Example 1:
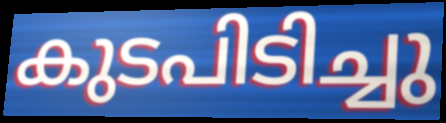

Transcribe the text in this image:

കുടപിടിച്ചു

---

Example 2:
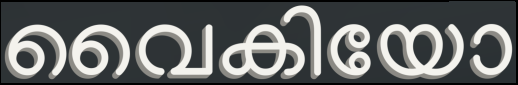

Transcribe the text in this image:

വൈകിയോ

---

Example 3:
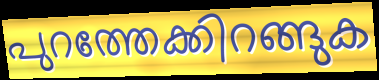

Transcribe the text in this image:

പുറത്തേക്കിറങ്ങുക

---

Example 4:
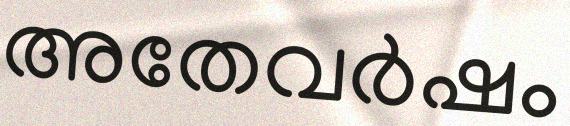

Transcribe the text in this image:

അതേവർഷം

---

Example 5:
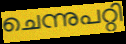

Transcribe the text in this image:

ചെന്നുപറ്റി